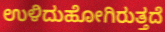
ಉಳಿದುಹೋಗಿರುತ್ತದೆ